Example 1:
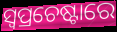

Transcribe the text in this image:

ସ୍ଵପ୍ରଚେଷ୍ଟାରେ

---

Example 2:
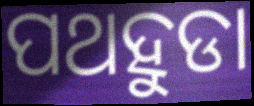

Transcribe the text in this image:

ପଥହୁଡା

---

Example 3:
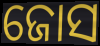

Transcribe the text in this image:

ଜୋସ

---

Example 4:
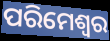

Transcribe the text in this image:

ପରିମେଶ୍ୱର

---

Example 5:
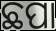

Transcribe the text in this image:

ଛପା